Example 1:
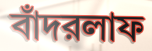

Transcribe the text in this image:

বাঁদরলাফ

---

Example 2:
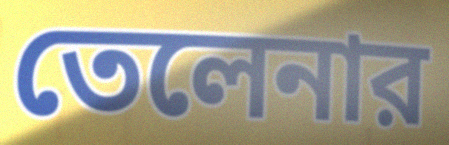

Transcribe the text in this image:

তেলেনার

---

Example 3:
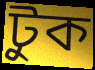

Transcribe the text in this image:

টুক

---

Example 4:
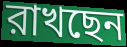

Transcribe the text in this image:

রাখছেন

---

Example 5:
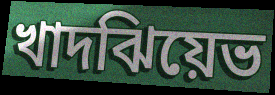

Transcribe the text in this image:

খাদঝিয়েভ